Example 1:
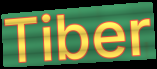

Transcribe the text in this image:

Tiber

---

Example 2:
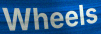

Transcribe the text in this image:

Wheels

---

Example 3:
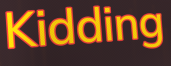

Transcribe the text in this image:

Kidding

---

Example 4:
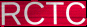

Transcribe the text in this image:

RCTC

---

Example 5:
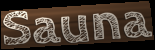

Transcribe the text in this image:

Sauna